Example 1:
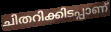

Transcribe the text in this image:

ചിതറിക്കിടപ്പാണ്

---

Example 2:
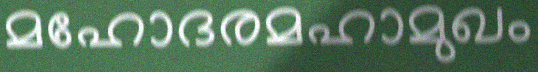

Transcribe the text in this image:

മഹോദരമഹാമുഖം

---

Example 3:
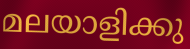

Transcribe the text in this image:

മലയാളിക്കു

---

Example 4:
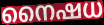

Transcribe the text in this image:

നൈഷധ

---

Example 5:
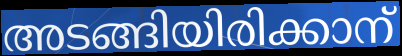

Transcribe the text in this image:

അടങ്ങിയിരിക്കാന്